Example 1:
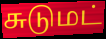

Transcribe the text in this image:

சுடுமட்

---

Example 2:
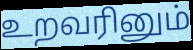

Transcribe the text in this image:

உறவரினும்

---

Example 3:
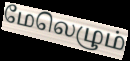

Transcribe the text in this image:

மேலெழும்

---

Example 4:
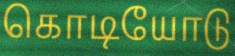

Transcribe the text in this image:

கொடியோடு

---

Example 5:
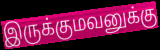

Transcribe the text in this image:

இருக்குமவனுக்கு